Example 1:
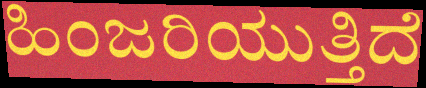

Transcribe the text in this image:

ಹಿಂಜರಿಯುತ್ತಿದೆ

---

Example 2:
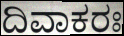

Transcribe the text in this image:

ದಿವಾಕರಃ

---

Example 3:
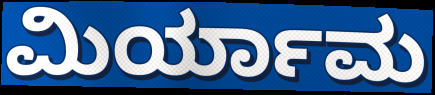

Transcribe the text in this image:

ಮಿರ್ಯಾಮ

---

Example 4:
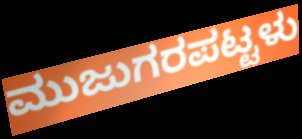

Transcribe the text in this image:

ಮುಜುಗರಪಟ್ಟಳು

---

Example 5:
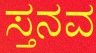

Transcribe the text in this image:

ಸ್ತನವ